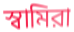
স্বামিরা